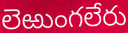
లెఱుంగలేరు